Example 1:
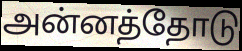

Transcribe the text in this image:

அன்னத்தோடு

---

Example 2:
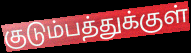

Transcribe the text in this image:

குடும்பத்துக்குள்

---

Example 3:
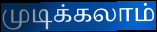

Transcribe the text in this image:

முடிக்கலாம்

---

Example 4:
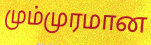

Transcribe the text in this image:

மும்முரமான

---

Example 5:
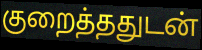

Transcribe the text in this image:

குறைத்ததுடன்